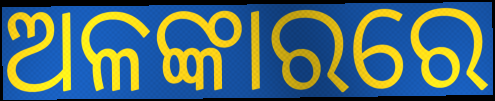
ଅଳଙ୍କାରରେ